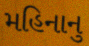
મહિનાનુ